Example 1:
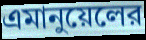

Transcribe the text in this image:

এমানুয়েলের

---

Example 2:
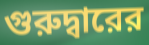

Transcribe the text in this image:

গুরুদ্বারের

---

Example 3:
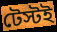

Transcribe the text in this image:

টেস্টই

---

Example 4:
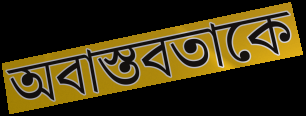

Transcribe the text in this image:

অবাস্তবতাকে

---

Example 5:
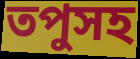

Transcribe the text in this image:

তপুসহ